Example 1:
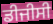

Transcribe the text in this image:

ਡੀਜੀਸੀ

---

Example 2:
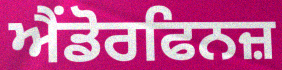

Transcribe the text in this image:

ਐਂਡੋਰਫਿਨਜ਼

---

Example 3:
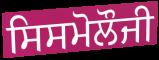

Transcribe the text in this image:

ਸਿਸਮੋਲੌਜੀ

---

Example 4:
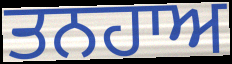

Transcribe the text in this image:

ਤਨਹਾਅ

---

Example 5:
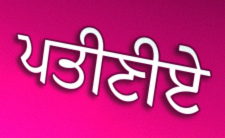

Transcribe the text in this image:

ਪਤੀਣੀਏ